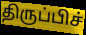
திருப்பிச்